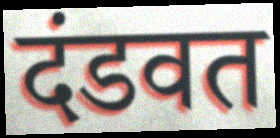
दंडवत